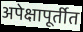
अपेक्षापूर्तीत